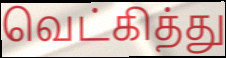
வெட்கித்து